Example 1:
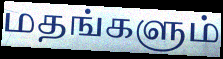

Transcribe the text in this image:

மதங்களும்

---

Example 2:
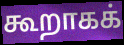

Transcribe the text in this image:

கூறாகக்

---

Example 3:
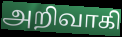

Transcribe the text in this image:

அறிவாகி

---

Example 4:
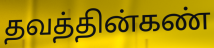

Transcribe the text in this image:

தவத்தின்கண்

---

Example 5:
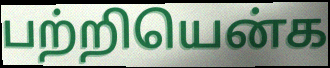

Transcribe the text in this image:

பற்றியென்க